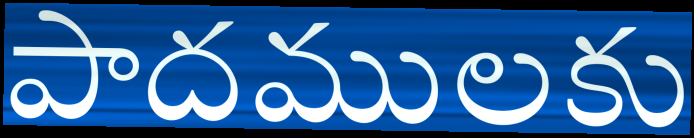
పాదములకు